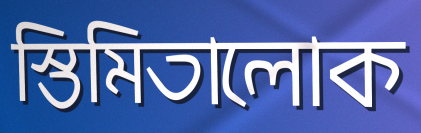
স্তিমিতালোক